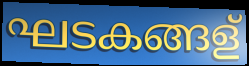
ഘടകങ്ങള്